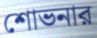
শোভনার